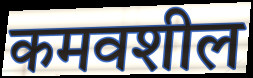
कमवशील